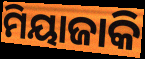
ମିୟାଜାକି